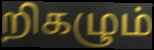
றிகழும்